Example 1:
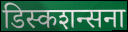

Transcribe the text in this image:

डिस्कशन्सना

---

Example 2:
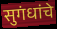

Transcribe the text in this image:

सुगंधांचे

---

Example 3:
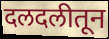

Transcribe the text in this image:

दलदलीतून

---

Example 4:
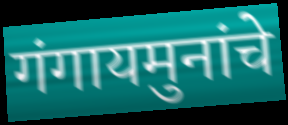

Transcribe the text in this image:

गंगायमुनांचे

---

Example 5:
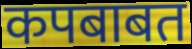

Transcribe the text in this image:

कपबाबत